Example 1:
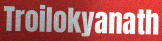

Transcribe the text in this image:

Troilokyanath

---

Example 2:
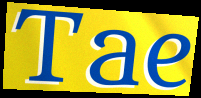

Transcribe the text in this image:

Tae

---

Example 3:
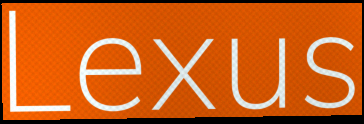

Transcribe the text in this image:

Lexus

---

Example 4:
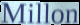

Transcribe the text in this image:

Millon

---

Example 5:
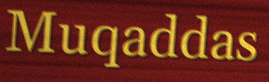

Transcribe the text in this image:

Muqaddas